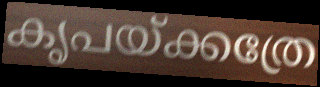
കൃപയ്ക്കത്രേ